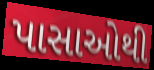
પાસાઓથી